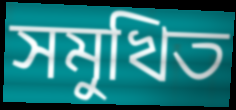
সমুখিত